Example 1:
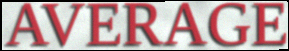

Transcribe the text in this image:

AVERAGE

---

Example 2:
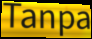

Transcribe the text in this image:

Tanpa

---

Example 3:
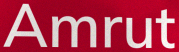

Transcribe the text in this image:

Amrut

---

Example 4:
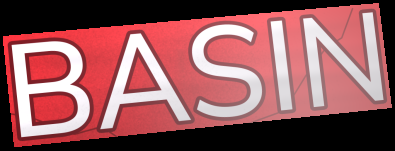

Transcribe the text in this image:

BASIN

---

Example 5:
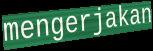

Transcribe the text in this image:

mengerjakan